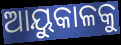
ଆୟୁକାଳକୁ